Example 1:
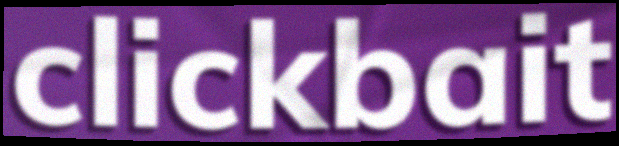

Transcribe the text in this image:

clickbait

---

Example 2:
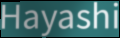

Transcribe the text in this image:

Hayashi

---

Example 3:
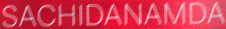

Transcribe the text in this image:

SACHIDANAMDA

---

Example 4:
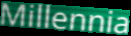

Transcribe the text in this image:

Millennia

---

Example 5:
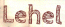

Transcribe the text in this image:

Lehel